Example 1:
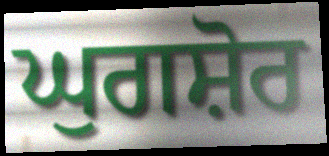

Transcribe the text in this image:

ਘੁਗਸ਼ੋਰ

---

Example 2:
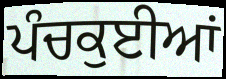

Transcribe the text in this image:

ਪੰਚਕੁਈਆਂ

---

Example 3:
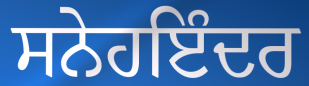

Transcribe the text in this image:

ਸਨੇਹਇੰਦਰ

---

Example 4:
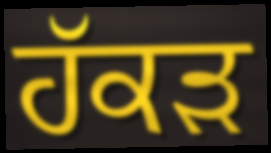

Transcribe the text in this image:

ਹੱਕੜ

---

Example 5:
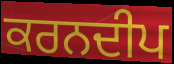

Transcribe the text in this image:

ਕਰਨਦੀਪ